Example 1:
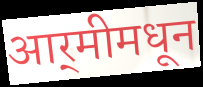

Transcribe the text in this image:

आर्मीमधून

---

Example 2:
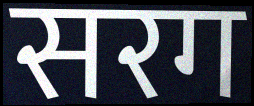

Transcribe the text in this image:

सरग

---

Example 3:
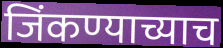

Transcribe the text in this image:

जिंकण्याच्याच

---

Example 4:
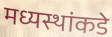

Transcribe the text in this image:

मध्यस्थांकडे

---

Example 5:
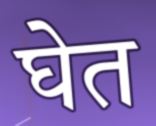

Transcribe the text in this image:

घेत